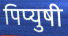
पिप्युषी